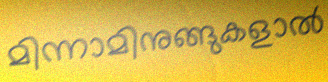
മിന്നാമിനുങ്ങുകളാൽ